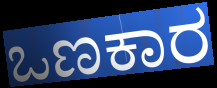
ಒಣಕಾರ